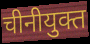
चीनीयुक्त